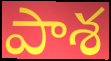
పాశ